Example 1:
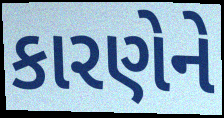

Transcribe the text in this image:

કારણેને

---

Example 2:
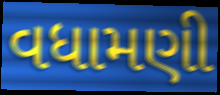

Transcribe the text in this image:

વધામણી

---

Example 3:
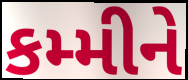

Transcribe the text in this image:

કમ્મીને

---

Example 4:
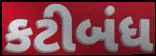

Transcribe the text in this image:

કટીબંધ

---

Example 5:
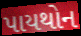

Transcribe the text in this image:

પાયથોન